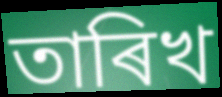
তাৰিখ